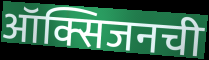
ऑक्सिजनची